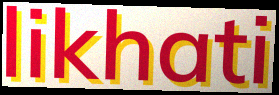
likhati